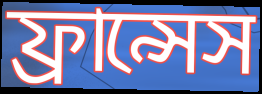
ফ্রান্সেস